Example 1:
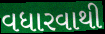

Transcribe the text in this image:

વધારવાથી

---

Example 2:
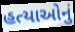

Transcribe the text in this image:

હત્યાઓનું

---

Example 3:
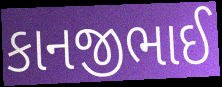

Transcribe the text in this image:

કાનજીભાઈ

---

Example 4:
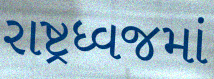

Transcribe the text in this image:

રાષ્ટ્રધ્વજમાં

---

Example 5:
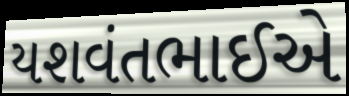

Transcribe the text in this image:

યશવંતભાઈએ